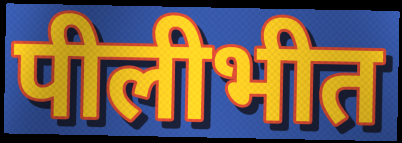
पीलीभीत